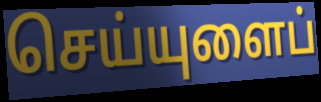
செய்யுளைப்